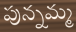
పున్నమ్మ